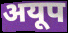
अयूप